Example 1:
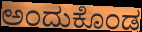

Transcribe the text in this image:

ಅಂದುಕೊಂಡ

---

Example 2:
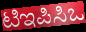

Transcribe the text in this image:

ಟಿಇಪಿಸಿಒ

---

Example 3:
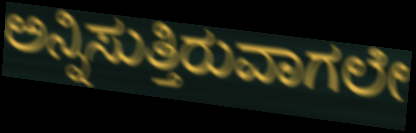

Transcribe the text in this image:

ಅನ್ನಿಸುತ್ತಿರುವಾಗಲೇ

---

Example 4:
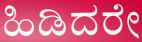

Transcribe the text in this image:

ಹಿಡಿದರೇ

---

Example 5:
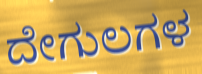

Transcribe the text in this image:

ದೇಗುಲಗಳ